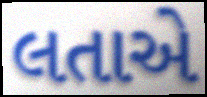
લતાએ